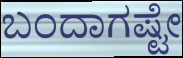
ಬಂದಾಗಷ್ಟೇ